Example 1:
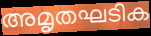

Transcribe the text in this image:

അമൃതഘടിക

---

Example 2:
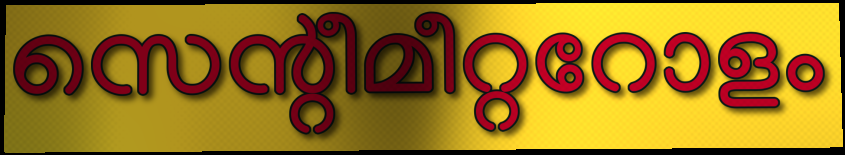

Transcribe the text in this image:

സെന്റീമീറ്ററോളം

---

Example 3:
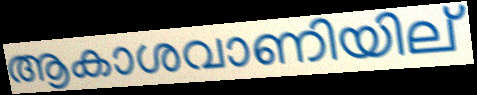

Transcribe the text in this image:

ആകാശവാണിയില്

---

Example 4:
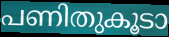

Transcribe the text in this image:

പണിതുകൂടാ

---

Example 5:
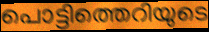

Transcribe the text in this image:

പൊട്ടിത്തെറിയുടെ